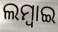
ଲମ୍ବାଇ